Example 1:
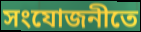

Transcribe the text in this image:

সংযোজনীতে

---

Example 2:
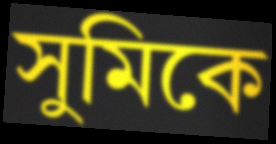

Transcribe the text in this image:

সুমিকে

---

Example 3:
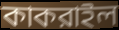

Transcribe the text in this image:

কাকরাইল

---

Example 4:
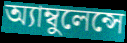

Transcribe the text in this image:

অ্যাম্বুলেন্সে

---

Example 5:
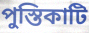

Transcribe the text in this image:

পুস্তিকাটি